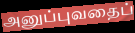
அனுப்புவதைப்